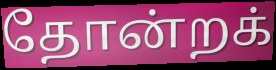
தோன்றக்